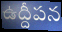
ఉద్దీపన